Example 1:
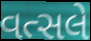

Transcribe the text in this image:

વત્સલે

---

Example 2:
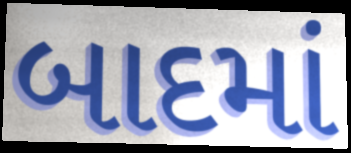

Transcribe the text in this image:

બાદમાં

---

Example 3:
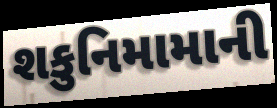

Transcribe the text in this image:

શકુનિમામાની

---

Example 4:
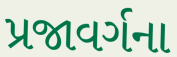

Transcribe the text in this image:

પ્રજાવર્ગના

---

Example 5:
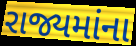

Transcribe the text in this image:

રાજ્યમાંના